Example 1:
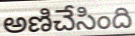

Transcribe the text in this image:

అణిచేసింది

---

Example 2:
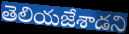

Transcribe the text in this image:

తెలియజేశాడని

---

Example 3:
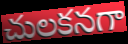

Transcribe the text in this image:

చులకనగా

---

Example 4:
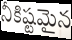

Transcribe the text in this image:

నీకిష్టమైన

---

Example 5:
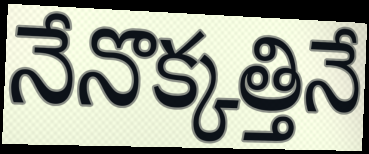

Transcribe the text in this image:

నేనొక్కత్తినే